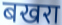
बखरा